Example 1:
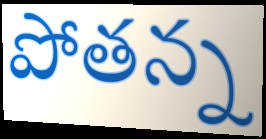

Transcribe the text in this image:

పోతన్న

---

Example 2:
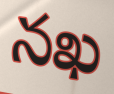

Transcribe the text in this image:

నఖ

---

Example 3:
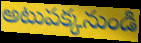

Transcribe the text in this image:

అటుపక్కనుండి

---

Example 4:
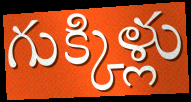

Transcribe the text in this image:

గుక్కిళ్లు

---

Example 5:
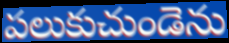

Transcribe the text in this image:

పలుకుచుండెను